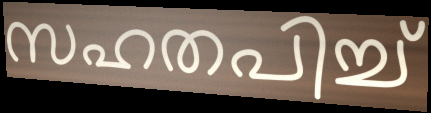
സഹതപിച്ച്